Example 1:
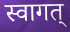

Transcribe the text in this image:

स्वागत्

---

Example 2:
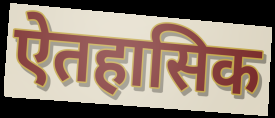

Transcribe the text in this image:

ऐतहासिक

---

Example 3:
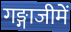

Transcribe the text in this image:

गङ्गाजीमें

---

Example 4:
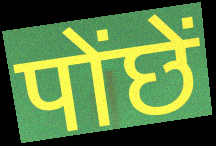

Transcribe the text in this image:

पोंछें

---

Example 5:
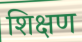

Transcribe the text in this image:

शिक्षण